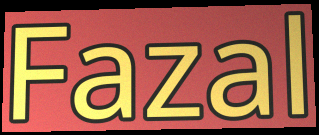
Fazal